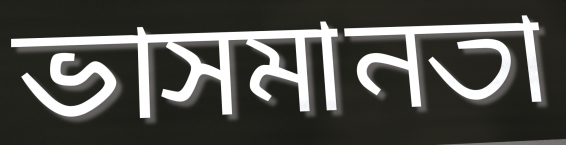
ভাসমানতা